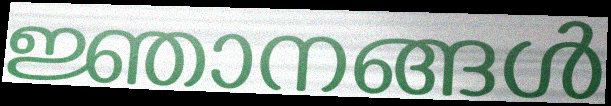
ജ്ഞാനങ്ങൾ